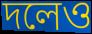
দলেও